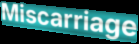
Miscarriage